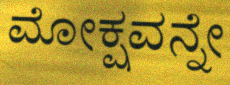
ಮೋಕ್ಷವನ್ನೇ